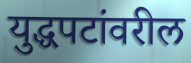
युद्धपटांवरील